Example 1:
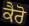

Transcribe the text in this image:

ਕੈਰੋ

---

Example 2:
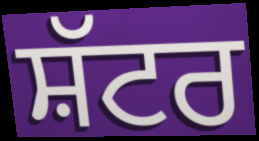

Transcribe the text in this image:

ਸ਼ੱਟਰ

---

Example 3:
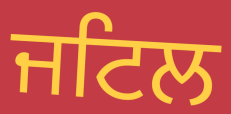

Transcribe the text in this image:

ਜਟਿਲ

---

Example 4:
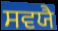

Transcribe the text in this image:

ਸਵਯੈ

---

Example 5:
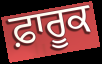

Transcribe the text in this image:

ਫ਼ਾਰੂਕ